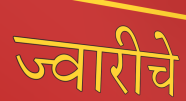
ज्वारीचे